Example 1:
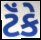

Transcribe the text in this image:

ટૅંકે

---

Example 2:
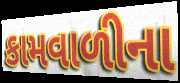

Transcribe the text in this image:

કામવાળીના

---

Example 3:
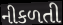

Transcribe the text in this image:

નીકળતી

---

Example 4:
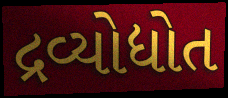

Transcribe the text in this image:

દ્રવ્યોદ્યોત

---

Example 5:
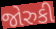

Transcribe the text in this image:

જોરુકી